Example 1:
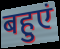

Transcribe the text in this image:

बहुएं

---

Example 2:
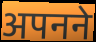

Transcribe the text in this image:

अपनने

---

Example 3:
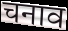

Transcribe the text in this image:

चनाव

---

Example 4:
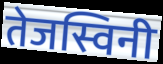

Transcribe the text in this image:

तेजस्विनी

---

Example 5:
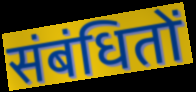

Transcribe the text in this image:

संबंधितों